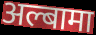
अल्बामा